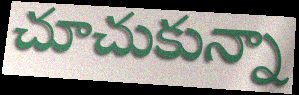
చూచుకున్నా